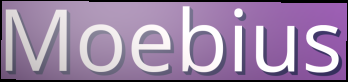
Moebius